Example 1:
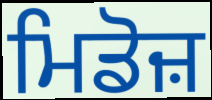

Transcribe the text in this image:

ਮਿਡੋਜ਼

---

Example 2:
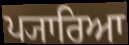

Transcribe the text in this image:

ਪ੍ਯਾਰਿਆ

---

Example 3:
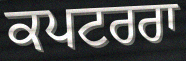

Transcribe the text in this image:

ਕਪਟਰਰਾ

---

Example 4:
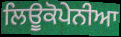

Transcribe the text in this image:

ਲਿਊਕੋਪੇਨੀਆ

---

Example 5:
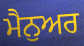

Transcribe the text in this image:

ਮੈਨੁਅਰ